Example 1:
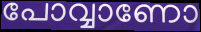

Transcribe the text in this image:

പോവ്വാണോ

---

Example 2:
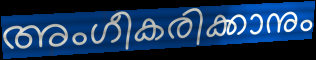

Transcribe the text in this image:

അംഗീകരിക്കാനും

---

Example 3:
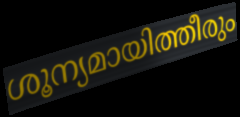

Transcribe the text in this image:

ശൂന്യമായിത്തീരും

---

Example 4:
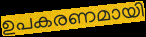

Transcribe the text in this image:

ഉപകരണമായി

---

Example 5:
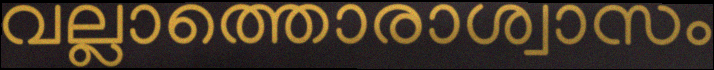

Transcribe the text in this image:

വല്ലാത്തൊരാശ്വാസം